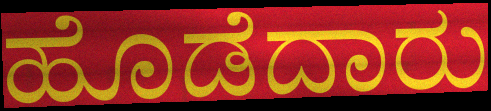
ಹೊಡೆದಾರು